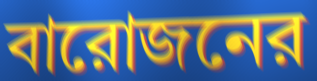
বারোজনের